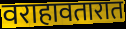
वराहावतारात